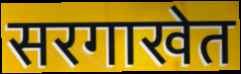
सरगाखेत